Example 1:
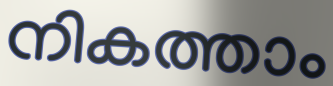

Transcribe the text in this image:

നികത്താം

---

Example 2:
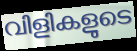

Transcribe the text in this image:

വിളികളുടെ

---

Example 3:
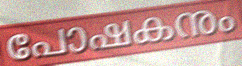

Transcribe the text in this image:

പോഷകനും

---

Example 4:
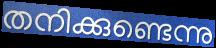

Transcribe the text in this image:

തനിക്കുണ്ടെന്നു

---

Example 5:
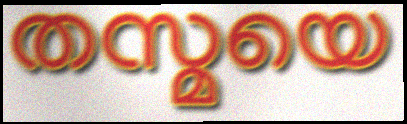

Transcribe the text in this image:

തസ്മയെ